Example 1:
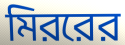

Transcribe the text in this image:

মিররের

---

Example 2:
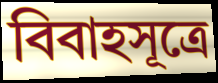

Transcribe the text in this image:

বিবাহসূত্রে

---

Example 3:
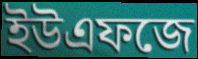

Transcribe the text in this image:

ইউএফজে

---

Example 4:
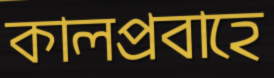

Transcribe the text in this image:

কালপ্রবাহে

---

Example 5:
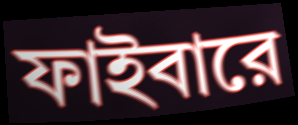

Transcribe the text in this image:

ফাইবারে